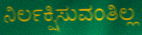
ನಿರ್ಲಕ್ಷಿಸುವಂತಿಲ್ಲ